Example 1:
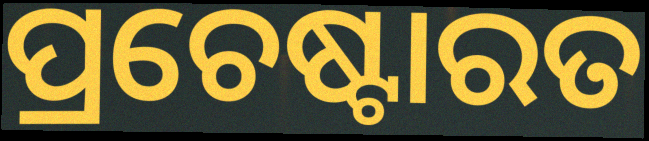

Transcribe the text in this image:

ପ୍ରଚେଷ୍ଟାରତ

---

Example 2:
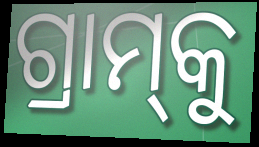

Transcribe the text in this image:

ଗ୍ରାମ୍‌କୁ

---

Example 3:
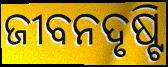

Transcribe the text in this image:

ଜୀବନଦୃଷ୍ଟି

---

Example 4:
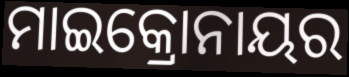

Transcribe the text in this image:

ମାଇକ୍ରୋନାୟର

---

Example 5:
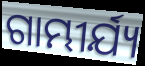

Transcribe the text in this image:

ଗାମ୍ଭୀର୍ଯ୍ୟ